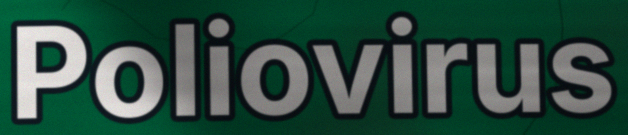
Poliovirus